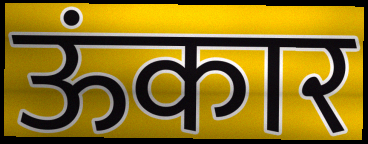
ऊंकार